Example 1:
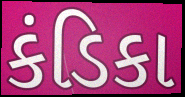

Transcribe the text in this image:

કંડિકા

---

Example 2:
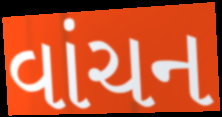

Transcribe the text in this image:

વાંચન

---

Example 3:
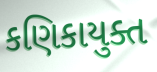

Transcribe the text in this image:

કણિકાયુક્ત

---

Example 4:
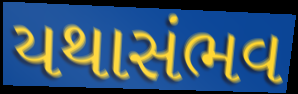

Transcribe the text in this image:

યથાસંભવ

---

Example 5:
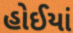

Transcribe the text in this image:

હોઈયાં